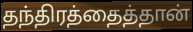
தந்திரத்தைத்தான்